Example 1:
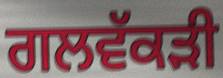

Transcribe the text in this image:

ਗਲਵੱਕੜੀ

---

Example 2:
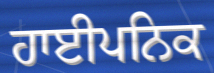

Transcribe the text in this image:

ਹਾਈਪਨਿਕ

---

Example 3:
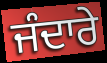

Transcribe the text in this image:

ਜੰਦਾਰੇ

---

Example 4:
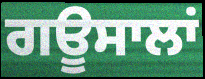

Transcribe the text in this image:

ਗਊਸਾਲਾਂ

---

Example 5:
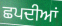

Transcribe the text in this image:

ਛਪਦੀਆਂ